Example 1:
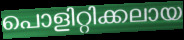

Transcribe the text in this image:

പൊളിറ്റിക്കലായ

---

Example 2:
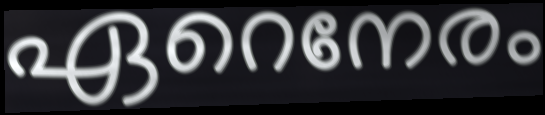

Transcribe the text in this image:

ഏറെനേരം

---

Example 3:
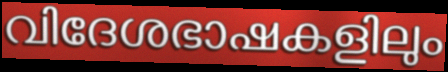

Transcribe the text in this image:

വിദേശഭാഷകളിലും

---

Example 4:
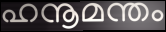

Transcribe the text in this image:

ഹനൂമന്തം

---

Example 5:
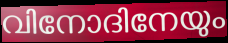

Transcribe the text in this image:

വിനോദിനേയും